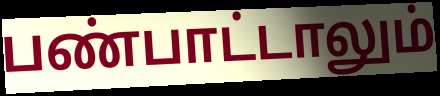
பண்பாட்டாலும்